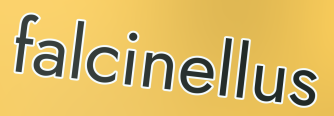
falcinellus